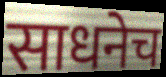
साधनेच